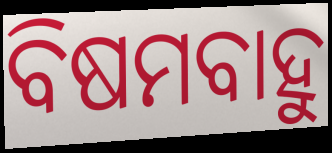
ବିଷମବାହୁ